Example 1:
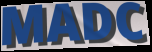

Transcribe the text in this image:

MADC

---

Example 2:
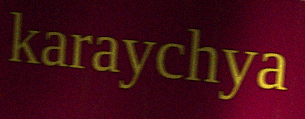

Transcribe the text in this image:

karaychya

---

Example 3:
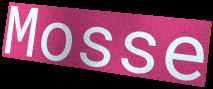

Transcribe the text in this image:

Mosse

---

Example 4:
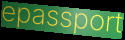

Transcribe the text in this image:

epassport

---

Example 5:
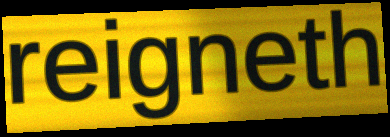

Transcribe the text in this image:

reigneth